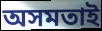
অসমতাই